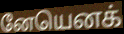
னேயெனக்